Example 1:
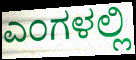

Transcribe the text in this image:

ಎಂಗಳಲ್ಲಿ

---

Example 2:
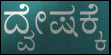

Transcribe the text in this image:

ದ್ವೇಷಕ್ಕೆ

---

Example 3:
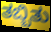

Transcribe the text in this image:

ತಬ್ಬಿತು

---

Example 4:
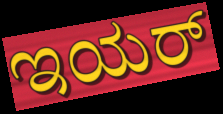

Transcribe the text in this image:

ಇಯರ್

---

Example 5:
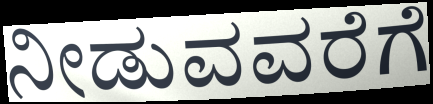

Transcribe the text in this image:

ನೀಡುವವರೆಗೆ